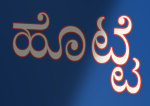
ಹೊಟ್ಟೆ